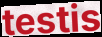
testis